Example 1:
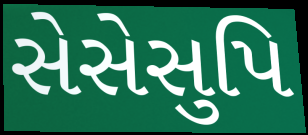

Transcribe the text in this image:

સેસેસુપિ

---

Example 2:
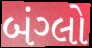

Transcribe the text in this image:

બંગ્લો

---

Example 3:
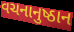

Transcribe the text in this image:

વચનાનુષ્ઠાન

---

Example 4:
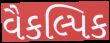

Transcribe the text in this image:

વૈકલ્પિક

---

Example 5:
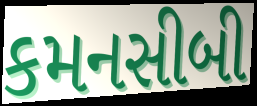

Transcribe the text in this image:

કમનસીબી